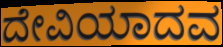
ದೇವಿಯಾದವ